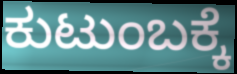
ಕುಟುಂಬಕ್ಕೆ